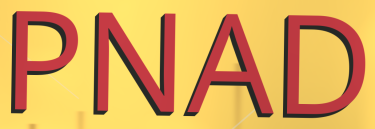
PNAD